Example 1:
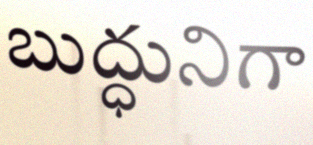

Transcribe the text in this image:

బుద్ధునిగా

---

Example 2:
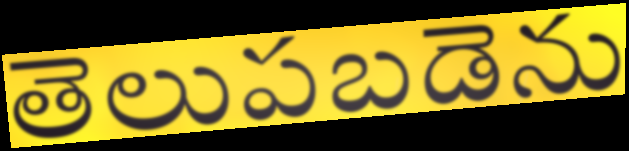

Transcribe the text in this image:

తెలుపబడెను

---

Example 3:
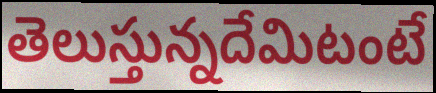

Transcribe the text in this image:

తెలుస్తున్నదేమిటంటే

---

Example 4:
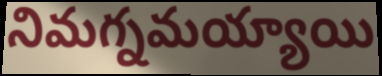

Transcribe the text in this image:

నిమగ్నమయ్యాయి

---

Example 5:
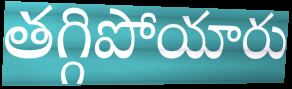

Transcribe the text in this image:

తగ్గిపోయారు